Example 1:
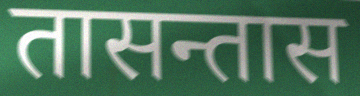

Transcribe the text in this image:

तासन्तास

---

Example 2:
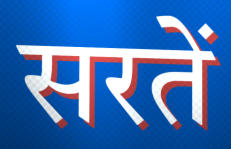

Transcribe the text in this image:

सरतें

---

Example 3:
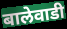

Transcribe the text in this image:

बालेवाडी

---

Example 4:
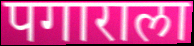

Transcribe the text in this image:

पगाराला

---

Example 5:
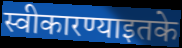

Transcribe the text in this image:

स्वीकारण्याइतके